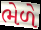
ભેળે